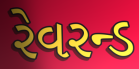
રેવરન્ડ